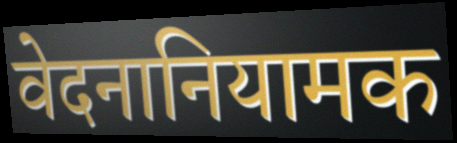
वेदनानियामक